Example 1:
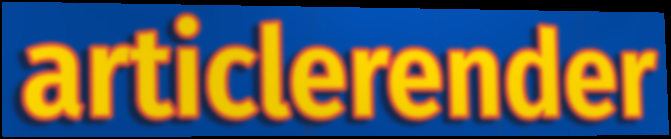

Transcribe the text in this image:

articlerender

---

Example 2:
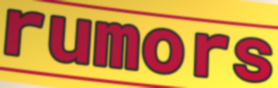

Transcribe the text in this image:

rumors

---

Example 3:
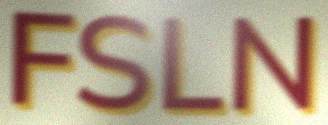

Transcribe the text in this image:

FSLN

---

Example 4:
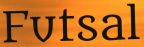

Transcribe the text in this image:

Futsal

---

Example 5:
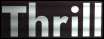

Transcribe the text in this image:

Thrill